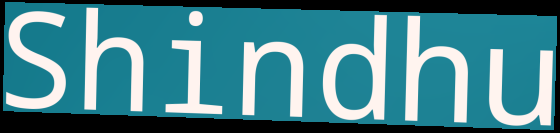
Shindhu